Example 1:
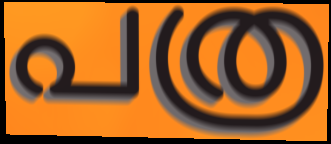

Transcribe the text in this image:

പത്ര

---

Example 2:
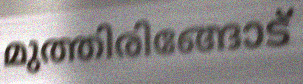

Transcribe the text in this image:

മുത്തിരിങ്ങോട്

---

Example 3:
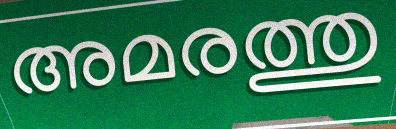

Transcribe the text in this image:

അമരത്തു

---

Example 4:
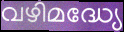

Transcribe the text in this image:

വഴിമദ്ധ്യേ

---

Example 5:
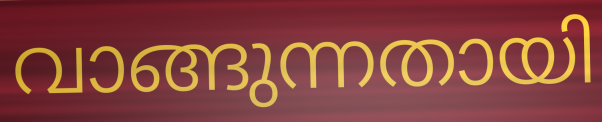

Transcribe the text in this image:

വാങ്ങുന്നതായി